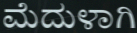
ಮೆದುಳಾಗಿ